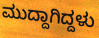
ಮುದ್ದಾಗಿದ್ದಳು